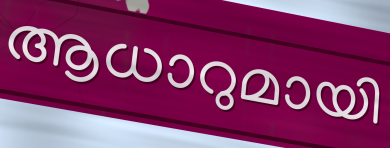
ആധാറുമായി